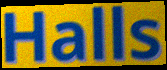
Halls